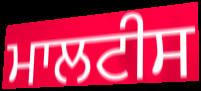
ਮਾਲਟੀਸ